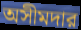
অসীমদার